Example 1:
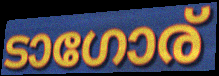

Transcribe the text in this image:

ടാഗോര്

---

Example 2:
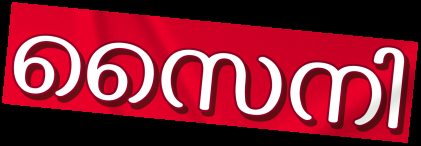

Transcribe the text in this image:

സൈനി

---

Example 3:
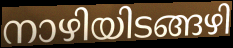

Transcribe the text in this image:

നാഴിയിടങ്ങഴി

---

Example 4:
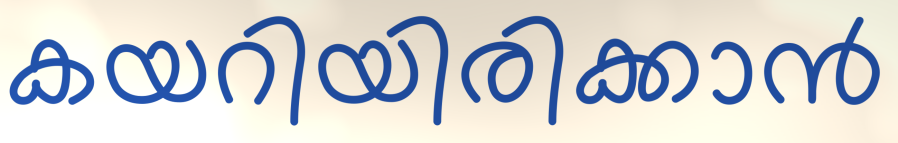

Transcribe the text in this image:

കയറിയിരിക്കാൻ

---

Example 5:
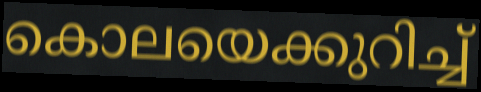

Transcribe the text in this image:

കൊലയെക്കുറിച്ച്